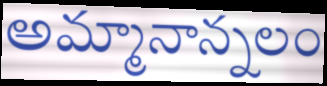
అమ్మానాన్నలం